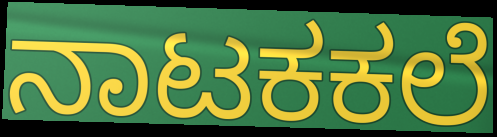
ನಾಟಕಕಲೆ